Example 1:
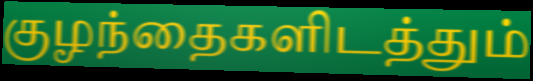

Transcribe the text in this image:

குழந்தைகளிடத்தும்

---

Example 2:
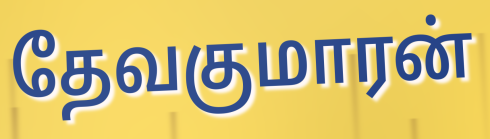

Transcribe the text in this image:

தேவகுமாரன்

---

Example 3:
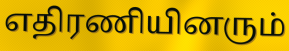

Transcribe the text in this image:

எதிரணியினரும்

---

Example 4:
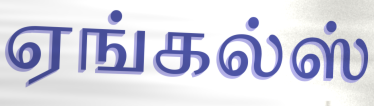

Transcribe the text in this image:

ஏங்கல்ஸ்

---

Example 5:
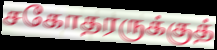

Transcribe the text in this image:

சகோதரருக்குத்